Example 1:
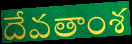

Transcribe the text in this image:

దేవతాంశ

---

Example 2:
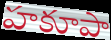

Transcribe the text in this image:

హకూపా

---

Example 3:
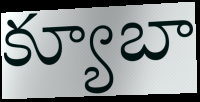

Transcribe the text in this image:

క్యూబా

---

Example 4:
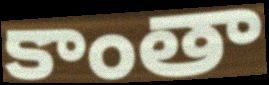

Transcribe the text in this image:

కాంతా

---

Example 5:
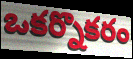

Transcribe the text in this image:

ఒకర్నొకరం